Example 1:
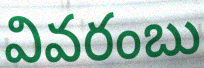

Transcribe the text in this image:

వివరంబు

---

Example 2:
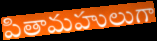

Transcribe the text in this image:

పితామహులుగా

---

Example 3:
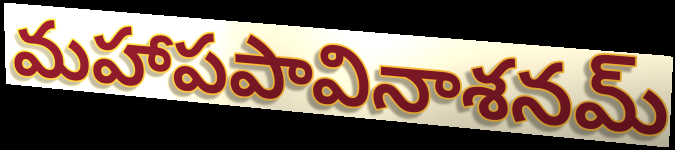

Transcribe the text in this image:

మహాపపావినాశనమ్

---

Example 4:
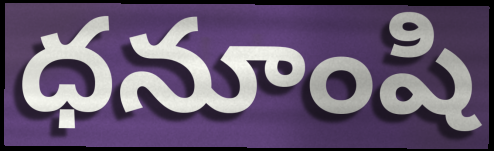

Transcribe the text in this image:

ధనూంషి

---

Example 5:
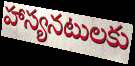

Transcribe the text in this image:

హాస్యనటులకు